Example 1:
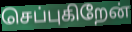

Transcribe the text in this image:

செப்புகிறேன்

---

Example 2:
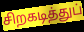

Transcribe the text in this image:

சிறகடித்துப்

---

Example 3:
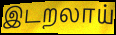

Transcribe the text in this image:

இடறலாய்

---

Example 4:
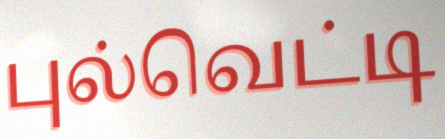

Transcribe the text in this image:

புல்வெட்டி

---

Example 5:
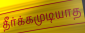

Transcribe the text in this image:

தீர்க்கமுடியாத